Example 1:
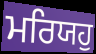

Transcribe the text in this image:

ਮਰਿਯਹੁ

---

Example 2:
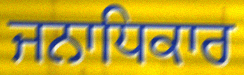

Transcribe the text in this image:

ਜਨਾਧਿਕਾਰ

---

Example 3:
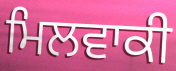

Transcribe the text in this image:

ਮਿਲਵਾਕੀ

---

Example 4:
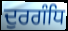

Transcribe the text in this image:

ਦੁਰਗੰਧਿ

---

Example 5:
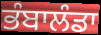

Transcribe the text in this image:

ਭੰਬਾਲੰਡਾ